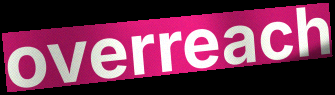
overreach